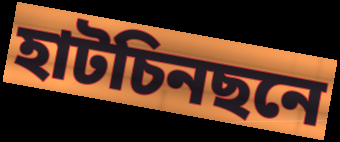
হাটচিনছনে